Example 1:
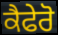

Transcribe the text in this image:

ਕੈਫੇਰੋ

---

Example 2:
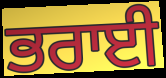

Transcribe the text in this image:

ਭਰਾਈ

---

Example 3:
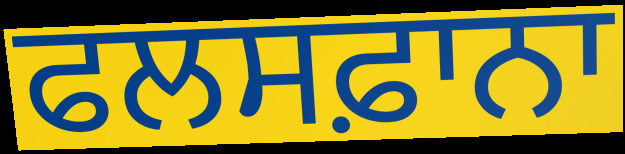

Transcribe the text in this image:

ਫਲਸਫ਼ਾਨਾ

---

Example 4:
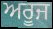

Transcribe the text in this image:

ਅਰੂਜ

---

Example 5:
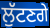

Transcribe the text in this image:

ਲੁੱਟਣਗੇ